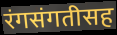
रंगसंगतीसह